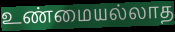
உண்மையல்லாத